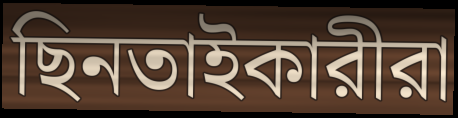
ছিনতাইকারীরা